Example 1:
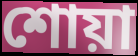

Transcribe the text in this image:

শোয়া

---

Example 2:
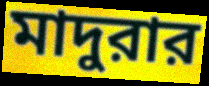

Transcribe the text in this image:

মাদুরার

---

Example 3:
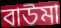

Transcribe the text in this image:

বাউমা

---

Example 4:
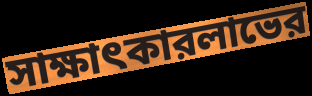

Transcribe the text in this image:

সাক্ষাৎকারলাভের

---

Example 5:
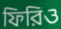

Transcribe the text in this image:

ফিরিও